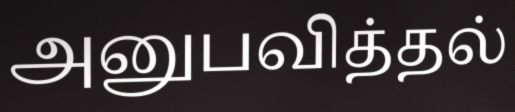
அனுபவித்தல்